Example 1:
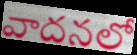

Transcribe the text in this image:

వాదనలో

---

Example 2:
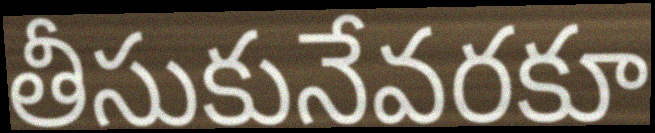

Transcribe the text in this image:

తీసుకునేవరకూ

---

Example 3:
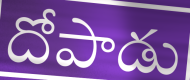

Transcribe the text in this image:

దోపాడు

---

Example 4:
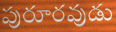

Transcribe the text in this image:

పురూరవుడు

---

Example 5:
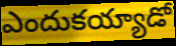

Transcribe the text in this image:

ఎందుకయ్యాడో